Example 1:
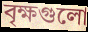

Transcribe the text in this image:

বৃক্ষগুলো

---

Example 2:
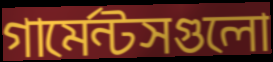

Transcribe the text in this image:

গার্মেন্টসগুলো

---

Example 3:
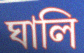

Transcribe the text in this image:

ঘালি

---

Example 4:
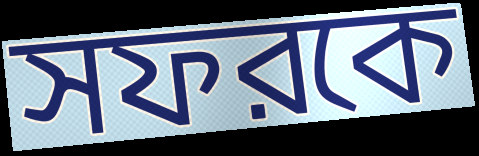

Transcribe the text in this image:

সফরকে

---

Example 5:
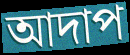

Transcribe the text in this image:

আদাপ